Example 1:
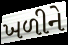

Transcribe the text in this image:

ખળીને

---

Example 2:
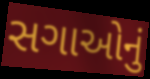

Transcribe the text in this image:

સગાઓનું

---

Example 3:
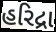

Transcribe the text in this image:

હરિદ્રા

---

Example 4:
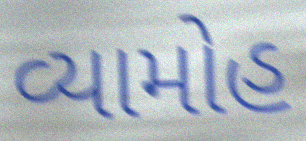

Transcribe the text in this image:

વ્યામોહ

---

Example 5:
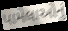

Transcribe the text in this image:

પામેલાઓનું